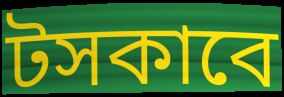
টসকাবে